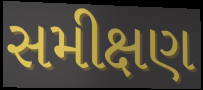
સમીક્ષણ